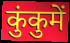
कुंकुमें